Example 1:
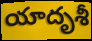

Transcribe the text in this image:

యాదృశీ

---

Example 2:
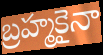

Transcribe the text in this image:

బ్రహ్మకైనా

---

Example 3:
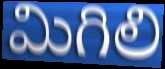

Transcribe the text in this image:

మిగిలి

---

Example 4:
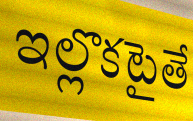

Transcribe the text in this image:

ఇల్లొకటైతే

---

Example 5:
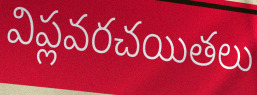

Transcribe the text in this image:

విప్లవరచయితలు